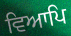
ਵਿਆਪਿ